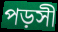
পড়সী